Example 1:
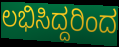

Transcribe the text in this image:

ಲಭಿಸಿದ್ದರಿಂದ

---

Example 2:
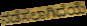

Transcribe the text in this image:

ನಡೆಸಲಾಗಿದೆಯೆ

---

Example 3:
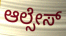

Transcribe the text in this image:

ಆಲ್ಸೇಸ್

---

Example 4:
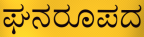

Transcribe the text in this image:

ಘನರೂಪದ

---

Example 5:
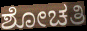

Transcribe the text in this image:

ಶೋಚತಿ